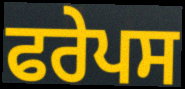
ਫਰੇਪਸ